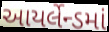
આયર્લેન્ડમાં